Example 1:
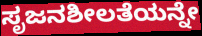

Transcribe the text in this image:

ಸೃಜನಶೀಲತೆಯನ್ನೇ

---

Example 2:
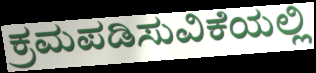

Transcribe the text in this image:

ಕ್ರಮಪಡಿಸುವಿಕೆಯಲ್ಲಿ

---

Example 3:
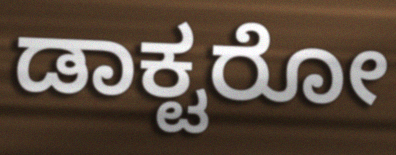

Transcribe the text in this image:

ಡಾಕ್ಟರೋ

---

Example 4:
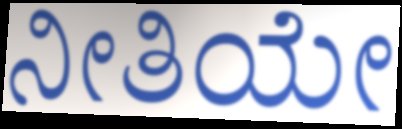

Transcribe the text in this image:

ನೀತಿಯೇ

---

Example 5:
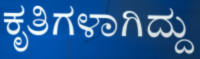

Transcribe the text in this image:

ಕೃತಿಗಳಾಗಿದ್ದು